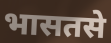
भासतसे